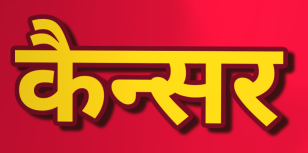
कैन्सर